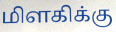
மிளகிக்கு